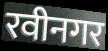
रवीनगर